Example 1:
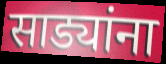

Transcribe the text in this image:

साड्यांना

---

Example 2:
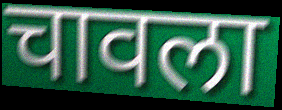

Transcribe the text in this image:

चावला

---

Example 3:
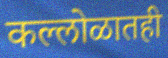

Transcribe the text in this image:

कल्लोळातही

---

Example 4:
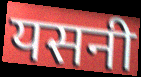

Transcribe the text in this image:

यसनी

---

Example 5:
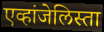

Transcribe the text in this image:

एव्हांजेलिस्ता